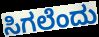
ಸಿಗಲೆಂದು